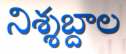
నిశ్శబ్దాల